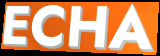
ECHA